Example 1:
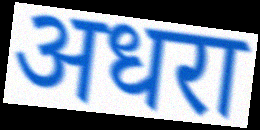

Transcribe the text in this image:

अधरा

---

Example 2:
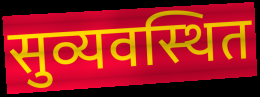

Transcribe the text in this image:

सुव्यवस्थित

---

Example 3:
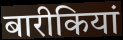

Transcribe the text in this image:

बारीकियां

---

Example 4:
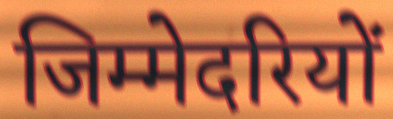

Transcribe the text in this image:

जिम्मेदरियों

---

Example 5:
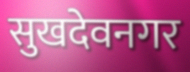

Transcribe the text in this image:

सुखदेवनगर